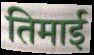
तिमाई